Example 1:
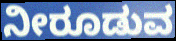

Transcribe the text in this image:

ನೀರೂಡುವ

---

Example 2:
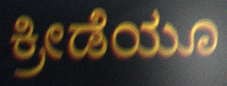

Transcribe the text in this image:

ಕ್ರೀಡೆಯೂ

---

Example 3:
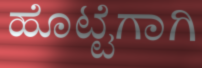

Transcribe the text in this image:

ಹೊಟ್ಟೆಗಾಗಿ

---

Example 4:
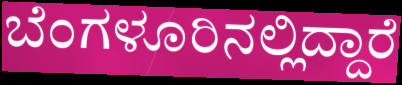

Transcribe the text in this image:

ಬೆಂಗಳೂರಿನಲ್ಲಿದ್ದಾರೆ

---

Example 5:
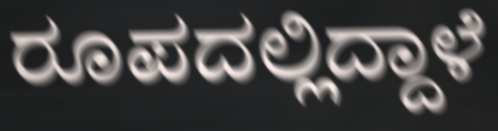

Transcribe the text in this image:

ರೂಪದಲ್ಲಿದ್ದಾಳೆ